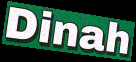
Dinah